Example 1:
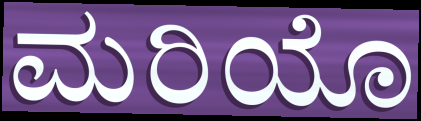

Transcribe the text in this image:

ಮರಿಯೊ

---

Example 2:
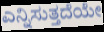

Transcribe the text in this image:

ಎನ್ನಿಸುತ್ತದೆಯೇ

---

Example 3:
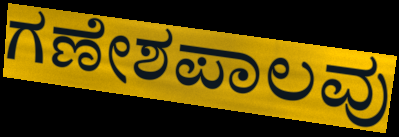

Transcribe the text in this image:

ಗಣೇಶಪಾಲವು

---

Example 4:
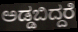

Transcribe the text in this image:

ಅಡ್ಡಬಿದ್ದರೆ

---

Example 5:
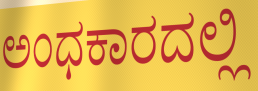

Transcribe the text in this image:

ಅಂಧಕಾರದಲ್ಲಿ